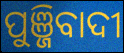
ପୁଞ୍ଜିବାଦୀ